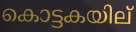
കൊട്ടകയില്